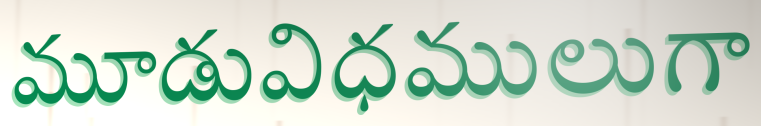
మూడువిధములుగా